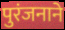
पुरंजनाने